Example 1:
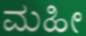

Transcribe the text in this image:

ಮಹೀ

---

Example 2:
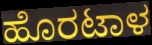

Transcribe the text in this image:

ಹೊರಟಾಳ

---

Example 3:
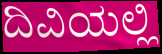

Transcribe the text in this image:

ದಿವಿಯಲ್ಲಿ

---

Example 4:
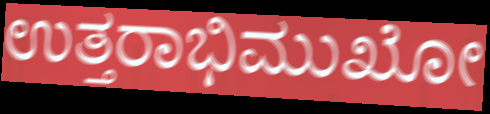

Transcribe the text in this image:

ಉತ್ತರಾಭಿಮುಖೋ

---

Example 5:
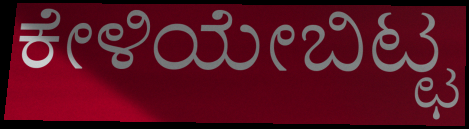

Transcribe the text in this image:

ಕೇಳಿಯೇಬಿಟ್ಟ